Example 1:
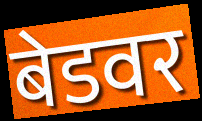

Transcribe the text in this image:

बेडवर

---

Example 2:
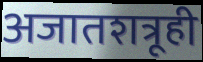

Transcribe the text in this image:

अजातशत्रूही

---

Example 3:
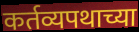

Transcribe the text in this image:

कर्तव्यपथाच्या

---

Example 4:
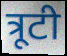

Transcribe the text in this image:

त्रूटी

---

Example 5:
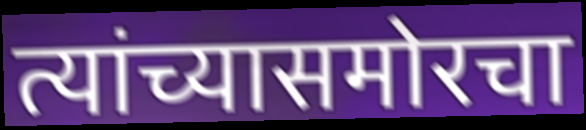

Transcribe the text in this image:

त्यांच्यासमोरचा